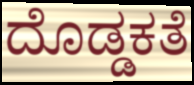
ದೊಡ್ಡಕತೆ